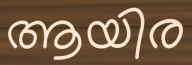
ആയിര